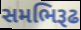
સમભિરૂઢ